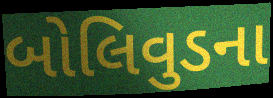
બોલિવુડના